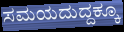
ಸಮಯದುದ್ದಕ್ಕೂ